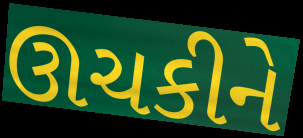
ઊચકીને